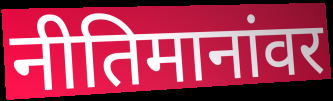
नीतिमानांवर